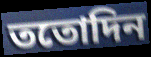
ততোদিন